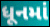
ધૂનમાં